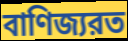
বাণিজ্যরত